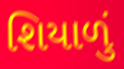
શિયાળું